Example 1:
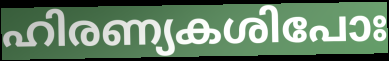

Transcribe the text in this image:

ഹിരണ്യകശിപോഃ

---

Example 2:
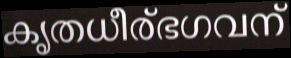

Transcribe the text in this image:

കൃതധീര്ഭഗവന്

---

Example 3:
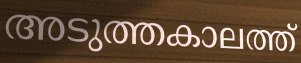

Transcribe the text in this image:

അടുത്തകാലത്ത്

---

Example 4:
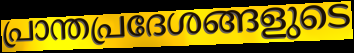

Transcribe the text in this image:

പ്രാന്തപ്രദേശങ്ങളുടെ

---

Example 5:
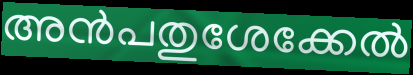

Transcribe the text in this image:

അൻപതുശേക്കേൽ